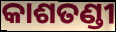
କାଶତଣ୍ଡୀ